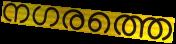
നഗരത്തെ